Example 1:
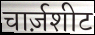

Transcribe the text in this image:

चार्ज़शीट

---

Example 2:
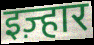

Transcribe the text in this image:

इज़्हार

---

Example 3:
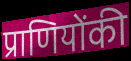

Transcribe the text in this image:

प्राणियोंकी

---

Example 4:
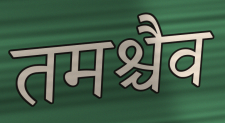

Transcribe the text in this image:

तमश्चैव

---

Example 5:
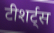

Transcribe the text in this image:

टीशर्ट्स